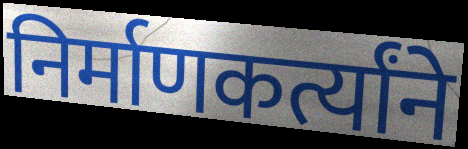
निर्माणकर्त्यांने